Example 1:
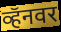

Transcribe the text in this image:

व्हॅनवर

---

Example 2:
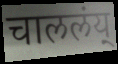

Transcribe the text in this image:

चाललंय्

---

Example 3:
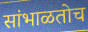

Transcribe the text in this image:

सांभाळतोच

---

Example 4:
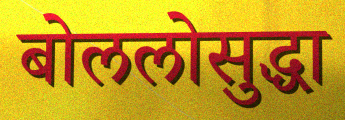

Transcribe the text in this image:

बोललोसुद्धा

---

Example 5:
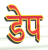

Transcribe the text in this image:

डेप